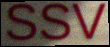
SSV